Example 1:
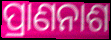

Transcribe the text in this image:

ପ୍ରାଣନାଶ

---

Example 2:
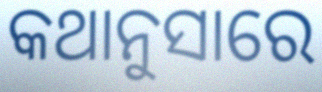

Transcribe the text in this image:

କଥାନୁସାରେ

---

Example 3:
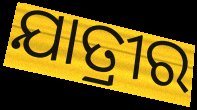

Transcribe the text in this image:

ଯାତ୍ରୀର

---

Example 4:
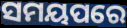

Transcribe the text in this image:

ସମୟପରେ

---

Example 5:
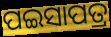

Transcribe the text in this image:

ପଇସାପତ୍ର